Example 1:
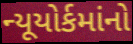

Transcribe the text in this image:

ન્યૂયોર્કમાંનો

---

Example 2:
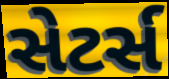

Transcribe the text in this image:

સેટર્સ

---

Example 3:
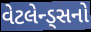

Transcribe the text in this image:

વેટલેન્ડ્સનો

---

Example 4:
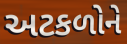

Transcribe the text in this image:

અટકળોને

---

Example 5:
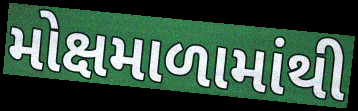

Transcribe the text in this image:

મોક્ષમાળામાંથી